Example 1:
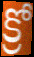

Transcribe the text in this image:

క్రో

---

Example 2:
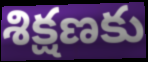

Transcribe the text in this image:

శిక్షణకు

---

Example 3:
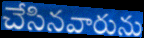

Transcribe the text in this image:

చేసినవారును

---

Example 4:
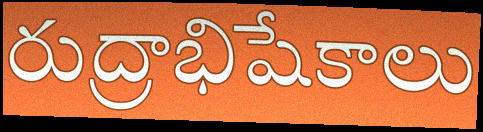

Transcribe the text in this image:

రుద్రాభిషేకాలు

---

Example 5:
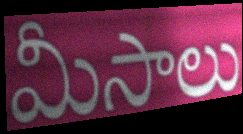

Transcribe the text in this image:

మీసాలు